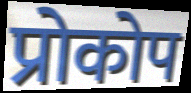
प्रोकोप